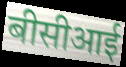
बीसीआई